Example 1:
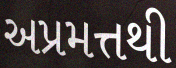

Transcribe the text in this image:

અપ્રમત્તથી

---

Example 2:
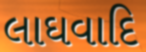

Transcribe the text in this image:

લાઘવાદિ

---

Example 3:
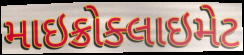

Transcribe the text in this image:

માઇક્રોક્લાઇમેટ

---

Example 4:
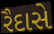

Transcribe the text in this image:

રૈદાસે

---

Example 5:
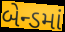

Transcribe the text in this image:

બેન્ડમાં